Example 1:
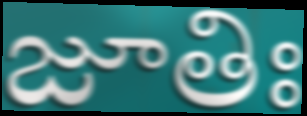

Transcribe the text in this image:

జూతిః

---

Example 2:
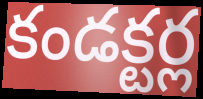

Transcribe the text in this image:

కండక్టర్ల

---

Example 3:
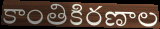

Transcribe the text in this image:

కాంతికిరణాల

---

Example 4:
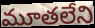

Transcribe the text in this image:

మూతలేని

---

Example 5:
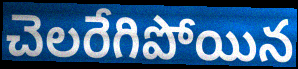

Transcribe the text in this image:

చెలరేగిపోయిన